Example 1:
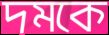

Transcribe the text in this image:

দমকে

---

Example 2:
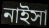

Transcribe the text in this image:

নাইসা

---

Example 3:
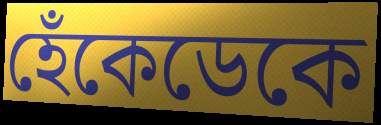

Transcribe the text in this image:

হেঁকেডেকে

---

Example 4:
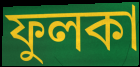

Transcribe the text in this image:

ফুলকা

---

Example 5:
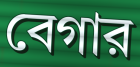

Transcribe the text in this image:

বেগার